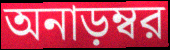
অনাড়ম্বর